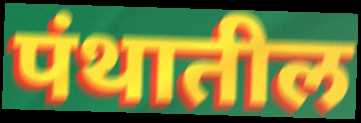
पंथातील